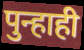
पुन्हाही